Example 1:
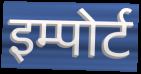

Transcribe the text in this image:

इम्पोर्ट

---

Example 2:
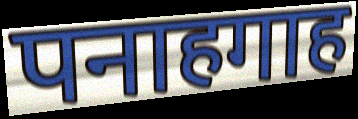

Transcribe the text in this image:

पनाहगाह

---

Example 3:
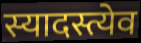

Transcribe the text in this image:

स्यादस्त्येव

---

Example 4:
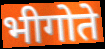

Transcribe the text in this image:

भीगोते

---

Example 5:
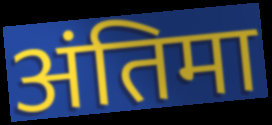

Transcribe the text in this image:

अंतिमा